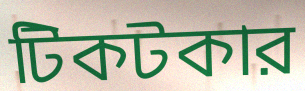
টিকটকার